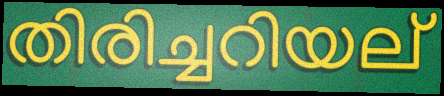
തിരിച്ചറിയല്